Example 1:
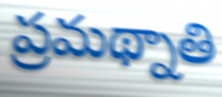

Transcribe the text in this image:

ప్రమథ్నాతి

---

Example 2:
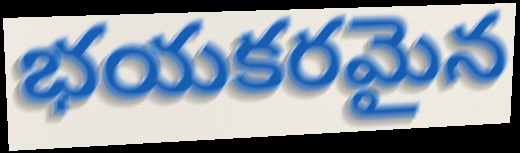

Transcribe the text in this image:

భయకరమైన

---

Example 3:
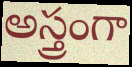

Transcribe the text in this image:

అస్త్రంగా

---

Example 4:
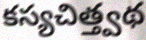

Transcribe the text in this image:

కస్యచిత్త్వథ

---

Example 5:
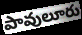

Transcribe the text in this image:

పావులూరు